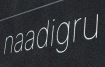
naadigru